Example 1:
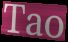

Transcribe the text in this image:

Tao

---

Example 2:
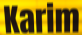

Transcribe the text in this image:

Karim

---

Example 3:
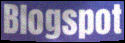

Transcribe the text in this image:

Blogspot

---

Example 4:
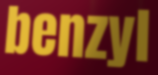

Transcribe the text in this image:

benzyl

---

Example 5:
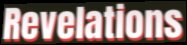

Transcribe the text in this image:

Revelations